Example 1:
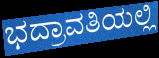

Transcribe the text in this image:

ಭದ್ರಾವತಿಯಲ್ಲಿ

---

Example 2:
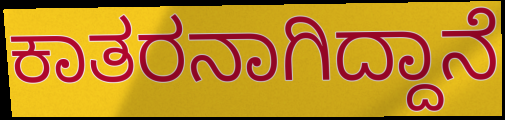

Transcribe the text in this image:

ಕಾತರನಾಗಿದ್ದಾನೆ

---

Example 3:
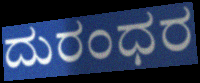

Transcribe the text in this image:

ದುರಂಧರ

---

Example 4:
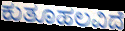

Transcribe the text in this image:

ಕುತೂಹಲವಿದೆ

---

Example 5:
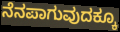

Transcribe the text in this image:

ನೆನಪಾಗುವುದಕ್ಕೂ